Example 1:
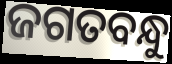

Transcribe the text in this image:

ଜଗତବନ୍ଧୁ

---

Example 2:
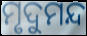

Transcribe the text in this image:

ମୃଦୁମନ୍ଦ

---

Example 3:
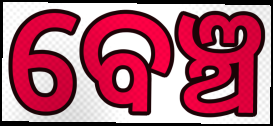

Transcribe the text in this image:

ବେଞ୍ଚ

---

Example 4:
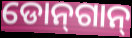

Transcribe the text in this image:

ଡୋନ୍‌ଗାନ୍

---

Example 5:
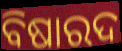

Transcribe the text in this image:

ବିଷାରଦ